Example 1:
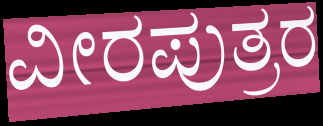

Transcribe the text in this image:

ವೀರಪುತ್ರರ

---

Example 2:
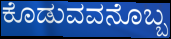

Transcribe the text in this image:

ಕೊಡುವವನೊಬ್ಬ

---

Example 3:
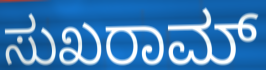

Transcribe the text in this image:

ಸುಖರಾಮ್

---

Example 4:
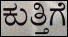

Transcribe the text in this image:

ಕುತ್ತಿಗೆ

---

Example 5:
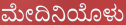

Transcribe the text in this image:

ಮೇದಿನಿಯೊಳು